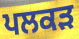
ਪਲਕੜ